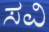
ಸವಿ